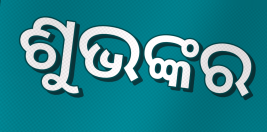
ଶୁଭଙ୍କର